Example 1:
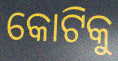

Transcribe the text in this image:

କୋଟିକୁ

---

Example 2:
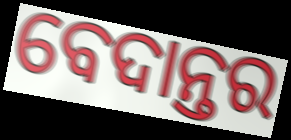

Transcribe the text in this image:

ବେଦାନ୍ତର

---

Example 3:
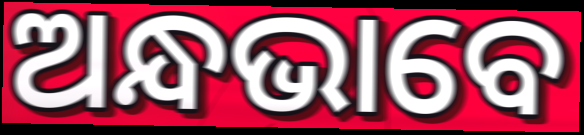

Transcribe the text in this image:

ଅନ୍ଧଭାବେ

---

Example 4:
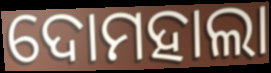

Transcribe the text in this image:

ଦୋମହାଲା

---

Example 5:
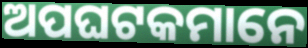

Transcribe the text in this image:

ଅପଘଟକମାନେ